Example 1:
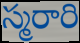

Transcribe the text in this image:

స్మరారి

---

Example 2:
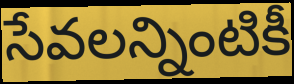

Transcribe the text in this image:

సేవలన్నింటికీ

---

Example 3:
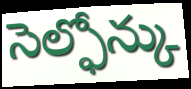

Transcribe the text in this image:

సెల్ఫోన్కు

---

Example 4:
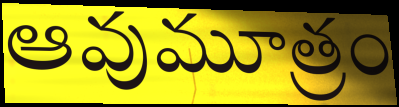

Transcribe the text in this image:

ఆవుమూత్రం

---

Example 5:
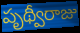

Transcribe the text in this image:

పృథ్వీరాజు